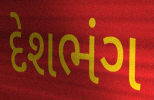
દેશભંગ